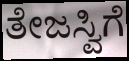
ತೇಜಸ್ವಿಗೆ